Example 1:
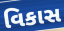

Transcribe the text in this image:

વિકાસ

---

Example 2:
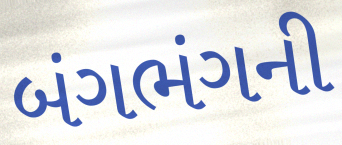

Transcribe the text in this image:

બંગભંગની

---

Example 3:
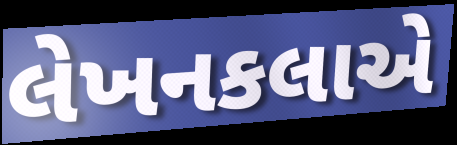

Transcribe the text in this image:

લેખનકલાએ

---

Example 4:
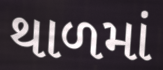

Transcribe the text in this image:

થાળમાં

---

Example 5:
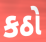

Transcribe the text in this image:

કઠો